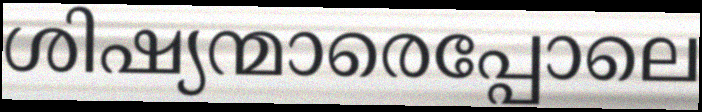
ശിഷ്യന്മാരെപ്പോലെ